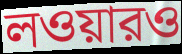
লওয়ারও